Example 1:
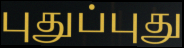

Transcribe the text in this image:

புதுப்புது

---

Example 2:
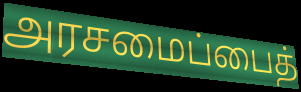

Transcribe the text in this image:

அரசமைப்பைத்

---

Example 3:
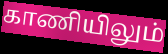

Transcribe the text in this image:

காணியிலும்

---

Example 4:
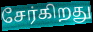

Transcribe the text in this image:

சேர்கிறது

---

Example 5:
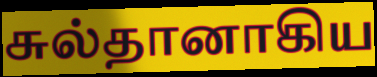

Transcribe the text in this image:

சுல்தானாகிய